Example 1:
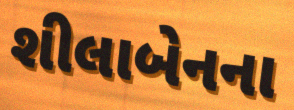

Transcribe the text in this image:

શીલાબેનના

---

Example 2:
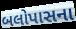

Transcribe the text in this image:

બલોપાસના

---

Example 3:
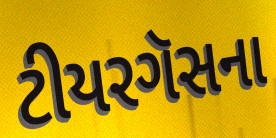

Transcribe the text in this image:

ટીયરગૅસના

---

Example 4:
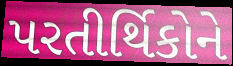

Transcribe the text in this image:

પરતીર્થિકોને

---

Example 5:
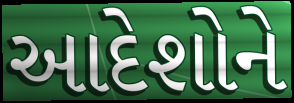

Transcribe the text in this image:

આદેશોને